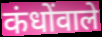
कंधोंवाले